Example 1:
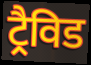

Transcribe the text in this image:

ट्रैविड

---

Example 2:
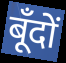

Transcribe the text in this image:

बूँदों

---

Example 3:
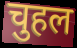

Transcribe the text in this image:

चुहल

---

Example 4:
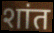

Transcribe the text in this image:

शांत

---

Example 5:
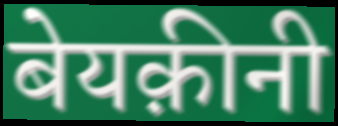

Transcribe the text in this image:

बेयक़ीनी